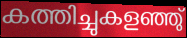
കത്തിച്ചുകളഞ്ഞു്